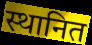
स्थानित